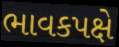
ભાવકપક્ષે